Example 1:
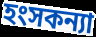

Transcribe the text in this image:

হংসকন্যা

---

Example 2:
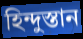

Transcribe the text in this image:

হিন্দুস্তান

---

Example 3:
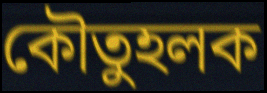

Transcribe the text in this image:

কৌতুহলক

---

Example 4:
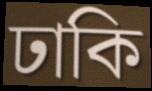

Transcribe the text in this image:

ঢাকি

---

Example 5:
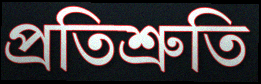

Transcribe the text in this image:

প্ৰতিশ্ৰুতি